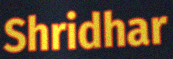
Shridhar